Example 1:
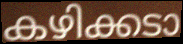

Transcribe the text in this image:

കഴിക്കടാ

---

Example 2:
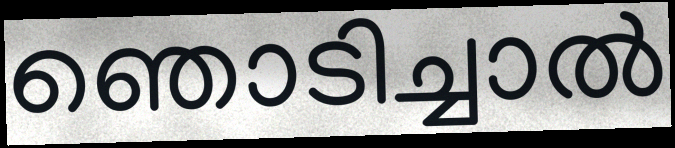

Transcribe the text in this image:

ഞൊടിച്ചാൽ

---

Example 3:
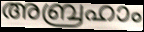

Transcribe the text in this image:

അബ്രഹാം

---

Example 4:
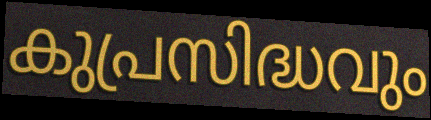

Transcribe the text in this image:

കുപ്രസിദ്ധവും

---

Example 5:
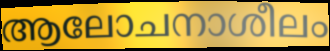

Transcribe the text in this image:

ആലോചനാശീലം